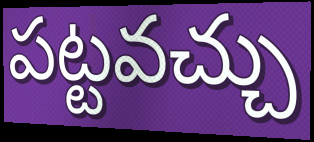
పట్టవచ్చు